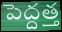
పెద్దత్త